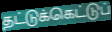
தட்டுக்கெட்டுப்